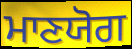
ਮਾਣਯੋਗ